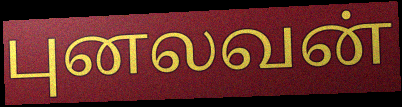
புனலவன்